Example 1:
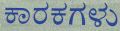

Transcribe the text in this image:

ಕಾರಕಗಳು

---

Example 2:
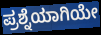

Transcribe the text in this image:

ಪ್ರಶ್ನೆಯಾಗಿಯೇ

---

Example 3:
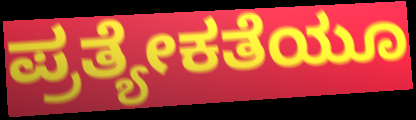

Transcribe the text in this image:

ಪ್ರತ್ಯೇಕತೆಯೂ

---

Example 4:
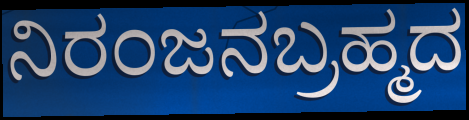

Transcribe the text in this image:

ನಿರಂಜನಬ್ರಹ್ಮದ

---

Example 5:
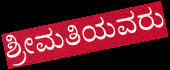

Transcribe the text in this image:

ಶ್ರೀಮತಿಯವರು